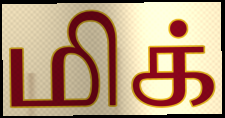
மிக்